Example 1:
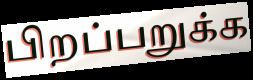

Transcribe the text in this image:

பிறப்பறுக்க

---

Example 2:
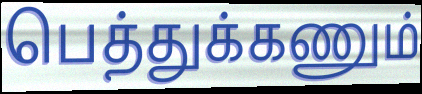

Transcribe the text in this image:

பெத்துக்கணும்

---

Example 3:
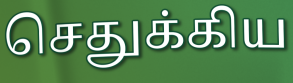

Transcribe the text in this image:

செதுக்கிய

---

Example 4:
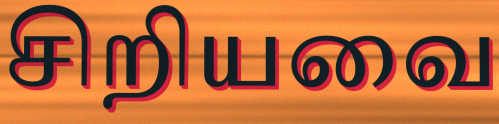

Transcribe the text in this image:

சிறியவை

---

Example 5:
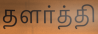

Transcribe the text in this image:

தளர்த்தி